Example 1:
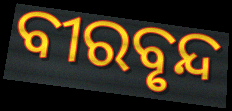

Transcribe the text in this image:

ବୀରବୃନ୍ଦ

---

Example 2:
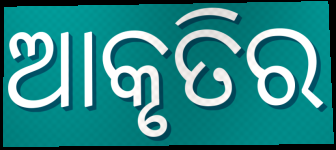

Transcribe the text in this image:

ଆକୃତିର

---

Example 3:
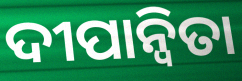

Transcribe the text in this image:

ଦୀପାନ୍ୱିତା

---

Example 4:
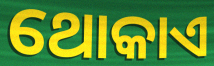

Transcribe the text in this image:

ଥୋକାଏ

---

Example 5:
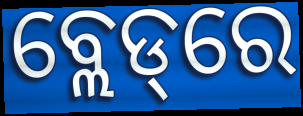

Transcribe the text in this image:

ବ୍ଲେଡ୍‌ରେ